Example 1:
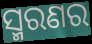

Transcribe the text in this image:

ସ୍ମରଣର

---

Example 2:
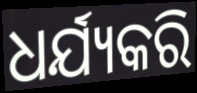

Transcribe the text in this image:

ଧର୍ଯ୍ୟକରି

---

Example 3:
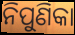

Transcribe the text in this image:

ନିପୁଣିକା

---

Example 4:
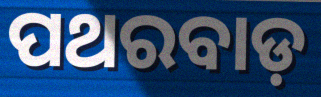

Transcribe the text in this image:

ପଥରବାଡ଼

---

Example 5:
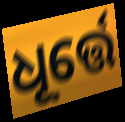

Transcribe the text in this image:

ଧୂର୍ତ୍ତେ